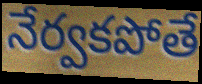
నేర్వకపోతే